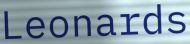
Leonards